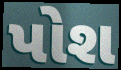
પોશ